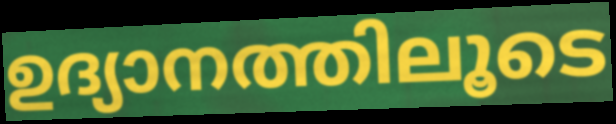
ഉദ്യാനത്തിലൂടെ